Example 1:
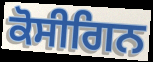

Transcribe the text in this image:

ਕੋਸੀਗਿਨ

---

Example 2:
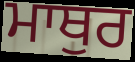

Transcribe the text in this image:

ਮਾਥੁਰ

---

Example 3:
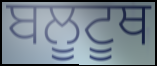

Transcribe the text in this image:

ਬਲੂਟੂਥ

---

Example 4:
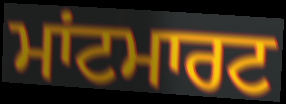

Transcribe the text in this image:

ਮਾਂਟਮਾਰਟ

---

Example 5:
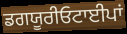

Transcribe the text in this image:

ਡਗਯੂਰੀਓਟਾਈਪਾਂ